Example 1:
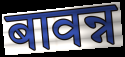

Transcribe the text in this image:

बावन्न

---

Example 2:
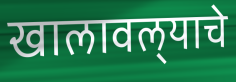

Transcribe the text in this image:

खालावल्याचे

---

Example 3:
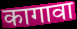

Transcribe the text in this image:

कागावा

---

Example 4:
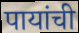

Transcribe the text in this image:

पायांची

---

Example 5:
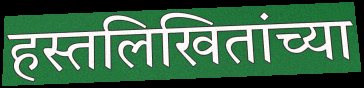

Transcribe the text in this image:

हस्तलिखितांच्या